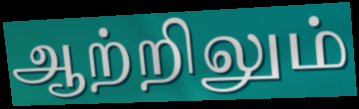
ஆற்றிலும்